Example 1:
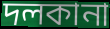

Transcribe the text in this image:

দলকানা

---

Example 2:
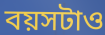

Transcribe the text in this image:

বয়সটাও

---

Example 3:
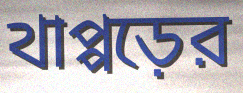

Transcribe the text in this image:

থাপ্পড়ের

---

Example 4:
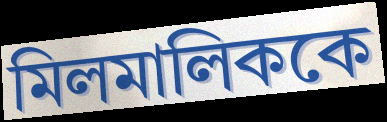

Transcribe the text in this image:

মিলমালিককে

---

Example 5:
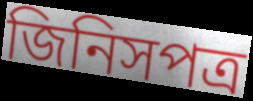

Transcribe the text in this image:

জিনিসপত্র